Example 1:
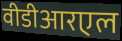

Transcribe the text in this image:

वीडीआरएल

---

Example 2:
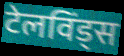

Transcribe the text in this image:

टेलविंड्स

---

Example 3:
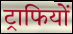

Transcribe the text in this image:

ट्राफियों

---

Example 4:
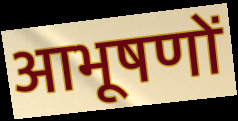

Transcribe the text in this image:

आभूषणों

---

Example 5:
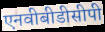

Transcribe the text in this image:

एनवीबीडीसीपी